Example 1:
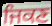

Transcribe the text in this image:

ਜਿਕਣ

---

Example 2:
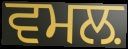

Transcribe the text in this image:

ਵਮਲ਼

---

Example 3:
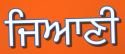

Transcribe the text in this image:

ਜਿਆਣੀ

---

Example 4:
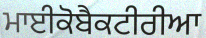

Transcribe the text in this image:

ਮਾਈਕੋਬੈਕਟੀਰੀਆ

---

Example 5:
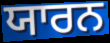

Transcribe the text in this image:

ਯਾਰਨ